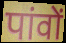
पांवों